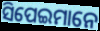
ସିପେଇମାନେ